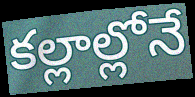
కల్లాల్లోనే